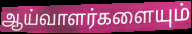
ஆய்வாளர்களையும்